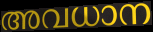
അവധാന